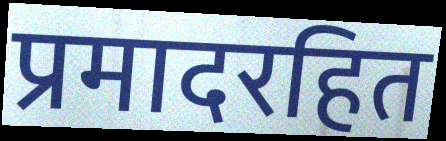
प्रमादरहित